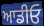
ਆਡੀਓ